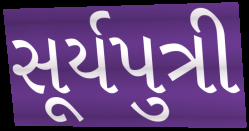
સૂર્યપુત્રી